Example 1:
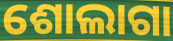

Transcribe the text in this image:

ଶୋଲାଗା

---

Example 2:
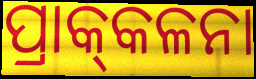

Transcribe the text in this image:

ପ୍ରାକ୍‌କଳନା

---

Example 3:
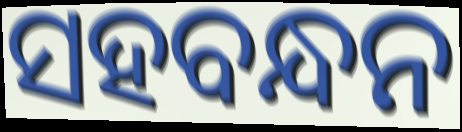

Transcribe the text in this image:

ସହବନ୍ଧନ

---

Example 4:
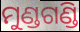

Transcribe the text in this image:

ମୁଣ୍ଡଗଣ୍ଡି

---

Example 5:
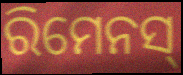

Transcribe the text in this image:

ରିମେନସ୍